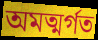
অমত্মর্গত